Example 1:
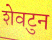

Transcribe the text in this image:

शेवटुन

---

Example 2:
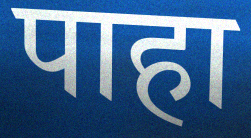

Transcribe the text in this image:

पाहा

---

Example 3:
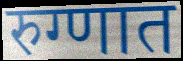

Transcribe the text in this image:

रुग्णात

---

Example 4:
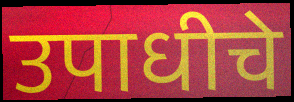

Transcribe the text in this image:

उपाधीचे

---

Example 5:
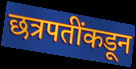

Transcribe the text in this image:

छत्रपतींकडून